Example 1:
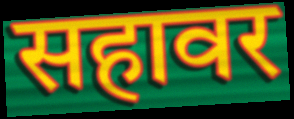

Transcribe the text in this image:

सहावर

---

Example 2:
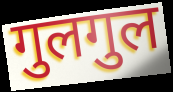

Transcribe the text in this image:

गुलगुल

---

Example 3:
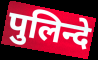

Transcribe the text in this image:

पुलिन्दे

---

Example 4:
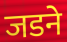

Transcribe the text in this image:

जडने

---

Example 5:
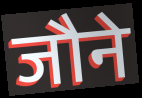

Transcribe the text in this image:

जौने